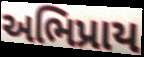
અભિપ્રાય